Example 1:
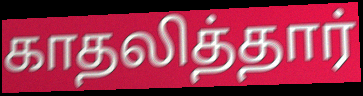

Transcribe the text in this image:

காதலித்தார்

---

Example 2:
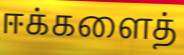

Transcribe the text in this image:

ஈக்களைத்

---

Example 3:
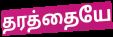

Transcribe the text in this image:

தரத்தையே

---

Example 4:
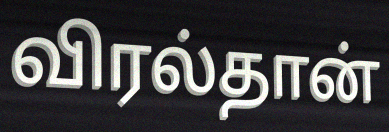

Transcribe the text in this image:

விரல்தான்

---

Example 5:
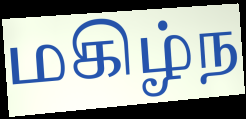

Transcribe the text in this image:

மகிழ்ந